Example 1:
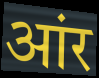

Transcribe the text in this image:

आंर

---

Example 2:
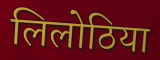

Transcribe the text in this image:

लिलोठिया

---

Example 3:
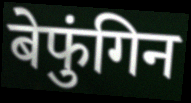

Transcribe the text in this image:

बेफुंगिन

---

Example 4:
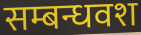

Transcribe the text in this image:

सम्बन्धवश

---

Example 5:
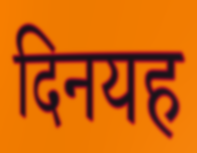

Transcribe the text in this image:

दिनयह